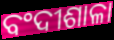
ବଂଦୀଶାଳା